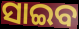
ସାଇବ